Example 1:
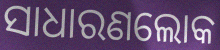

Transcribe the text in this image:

ସାଧାରଣଲୋକ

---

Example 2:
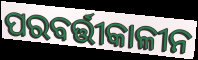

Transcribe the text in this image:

ପରବର୍ତ୍ତୀକାଳୀନ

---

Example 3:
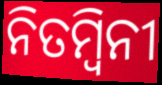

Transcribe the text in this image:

ନିତମ୍ବିନୀ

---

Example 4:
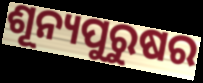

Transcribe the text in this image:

ଶୂନ୍ୟପୁରୁଷର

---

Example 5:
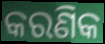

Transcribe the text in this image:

କରଣିକ